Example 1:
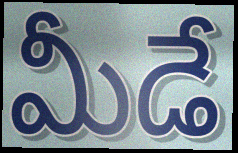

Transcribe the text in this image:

మీడే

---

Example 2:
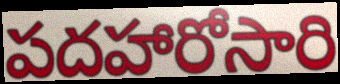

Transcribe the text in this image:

పదహారోసారి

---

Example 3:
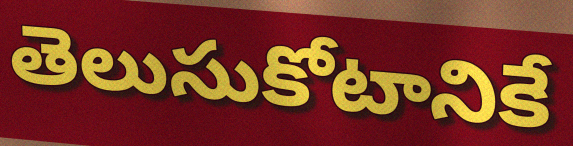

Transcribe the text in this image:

తెలుసుకోటానికే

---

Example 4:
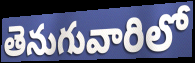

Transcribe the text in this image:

తెనుగువారిలో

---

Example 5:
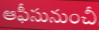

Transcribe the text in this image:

ఆఫీసునుంచీ